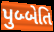
પુબ્બેતિ